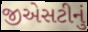
જીએસટીનું